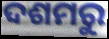
ଦଶମରୁ